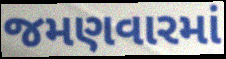
જમણવારમાં